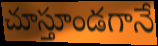
చూస్తూండగానే